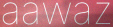
aawaz